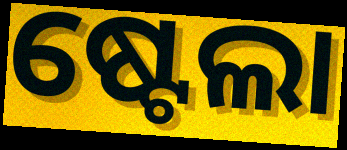
ଷ୍ଟେଲା